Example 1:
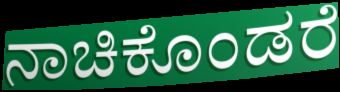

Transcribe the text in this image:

ನಾಚಿಕೊಂಡರೆ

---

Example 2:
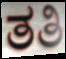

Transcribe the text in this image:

ತತಿ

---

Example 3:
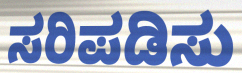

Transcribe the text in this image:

ಸರಿಪಡಿಸು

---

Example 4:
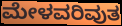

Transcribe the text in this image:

ಮೇಳವರಿವುತ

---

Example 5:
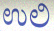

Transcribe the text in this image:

ಉಲಿ